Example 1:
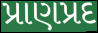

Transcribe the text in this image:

પ્રાણપ્રદ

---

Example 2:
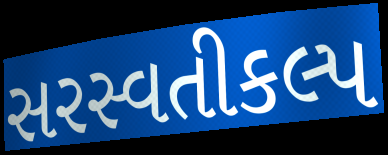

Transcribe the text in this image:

સરસ્વતીકલ્પ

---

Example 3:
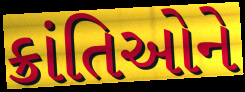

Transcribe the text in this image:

ક્રાંતિઓને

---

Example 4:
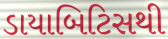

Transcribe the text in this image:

ડાયાબિટિસથી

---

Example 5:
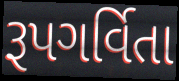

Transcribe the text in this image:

રૂપગર્વિતા